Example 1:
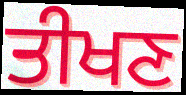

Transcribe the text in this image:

ਤੀਖਣ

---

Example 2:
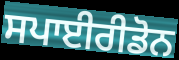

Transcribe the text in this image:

ਸਪਾਈਰੀਡੋਨ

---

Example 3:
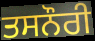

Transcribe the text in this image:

ਤਸਨੌਰੀ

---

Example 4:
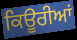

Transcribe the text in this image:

ਕਿਊਰੀਆਂ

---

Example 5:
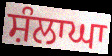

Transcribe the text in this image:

ਸ਼ੰਲਾਘਾ